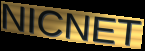
NICNET